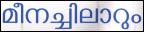
മീനച്ചിലാറും